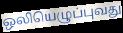
ஒலியெழுப்புவது